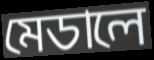
মেডালে